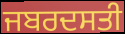
ਜਬਰਦਸਤੀ